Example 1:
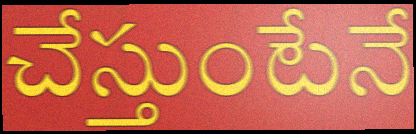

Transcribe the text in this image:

చేస్తుంటేనే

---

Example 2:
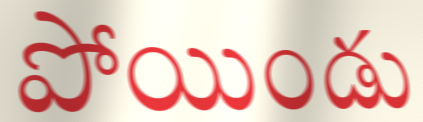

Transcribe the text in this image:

పోయిండు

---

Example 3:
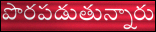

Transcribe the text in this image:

పొరపడుతున్నారు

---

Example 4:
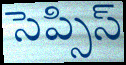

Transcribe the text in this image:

సెప్సిస్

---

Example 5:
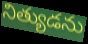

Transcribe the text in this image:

నిత్యుడను